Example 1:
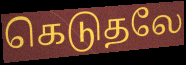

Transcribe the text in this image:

கெடுதலே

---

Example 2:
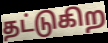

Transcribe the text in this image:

தட்டுகிற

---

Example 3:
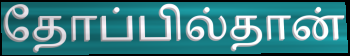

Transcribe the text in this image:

தோப்பில்தான்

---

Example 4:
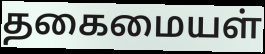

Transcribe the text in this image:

தகைமையள்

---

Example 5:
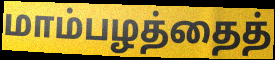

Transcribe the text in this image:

மாம்பழத்தைத்